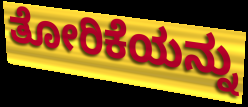
ತೋರಿಕೆಯನ್ನು